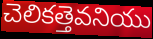
చెలికత్తెవనియు